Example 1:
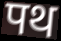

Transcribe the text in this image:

पथ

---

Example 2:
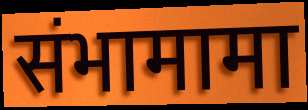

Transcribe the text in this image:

संभामामा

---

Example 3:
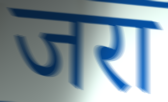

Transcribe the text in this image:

जरा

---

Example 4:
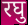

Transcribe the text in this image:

रघु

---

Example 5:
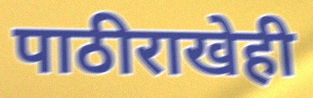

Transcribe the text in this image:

पाठीराखेही